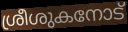
ശ്രീശുകനോട്